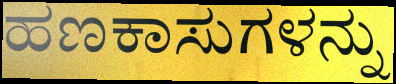
ಹಣಕಾಸುಗಳನ್ನು